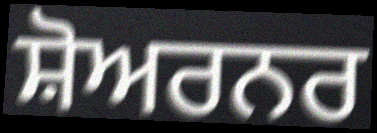
ਸ਼ੋਅਰਨਰ